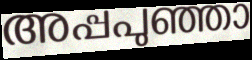
അപ്പപുഞ്ഞാ